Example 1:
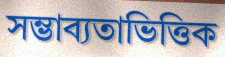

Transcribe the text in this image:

সম্ভাব্যতাভিত্তিক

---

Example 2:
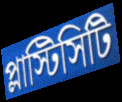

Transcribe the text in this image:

প্লাস্টিসিটি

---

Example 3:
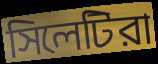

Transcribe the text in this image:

সিলেটিরা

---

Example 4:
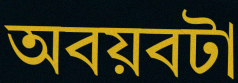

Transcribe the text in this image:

অবয়বটা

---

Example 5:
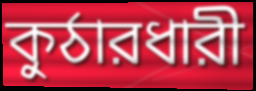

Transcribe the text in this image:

কুঠারধারী